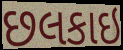
છલકાઇ